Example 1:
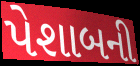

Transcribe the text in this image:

પેશાબની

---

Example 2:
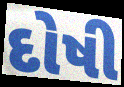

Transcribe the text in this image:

દોષી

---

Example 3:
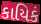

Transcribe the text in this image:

કાયિકં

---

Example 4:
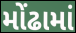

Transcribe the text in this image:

મોંઢામાં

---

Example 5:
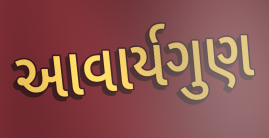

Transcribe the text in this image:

આવાર્યગુણ